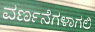
ವರ್ಣನೆಗಳಾಗಲಿ